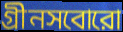
গ্রীনসবোরো